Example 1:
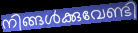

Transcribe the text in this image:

നിങ്ങൾക്കുവേണ്ടി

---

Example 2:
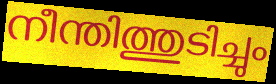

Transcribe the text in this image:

നീന്തിത്തുടിച്ചും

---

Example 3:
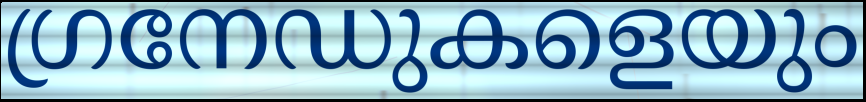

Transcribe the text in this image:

ഗ്രനേഡുകളെയും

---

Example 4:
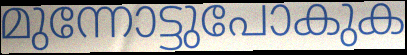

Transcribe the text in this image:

മുന്നോട്ടുപോകുക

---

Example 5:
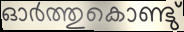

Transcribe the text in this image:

ഓർത്തുകൊണ്ടു്